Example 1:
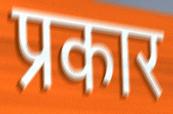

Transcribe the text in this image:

प्रकार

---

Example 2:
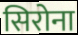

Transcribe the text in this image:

सिरोना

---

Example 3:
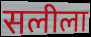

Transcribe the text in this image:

सलीला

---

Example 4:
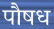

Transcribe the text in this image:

पौषध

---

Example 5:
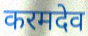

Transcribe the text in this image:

करमदेव